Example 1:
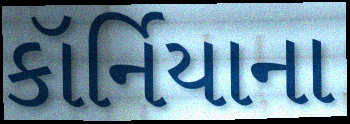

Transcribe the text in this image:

કૉર્નિયાના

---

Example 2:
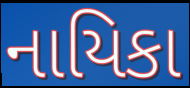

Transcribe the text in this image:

નાયિકા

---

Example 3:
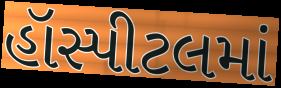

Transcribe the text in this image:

હૉસ્પીટલમાં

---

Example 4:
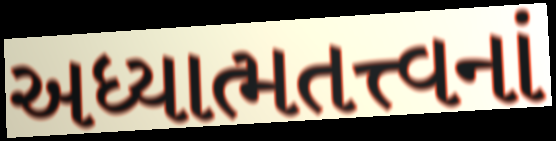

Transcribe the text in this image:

અધ્યાત્મતત્ત્વનાં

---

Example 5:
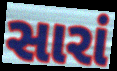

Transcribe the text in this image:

સારાં